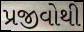
પ્રજીવોથી